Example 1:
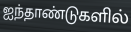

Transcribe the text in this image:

ஐந்தாண்டுகளில்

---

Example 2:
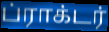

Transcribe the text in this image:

ப்ராக்டர்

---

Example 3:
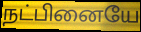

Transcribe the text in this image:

நட்பினையே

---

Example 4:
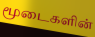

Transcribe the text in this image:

மூடைகளின்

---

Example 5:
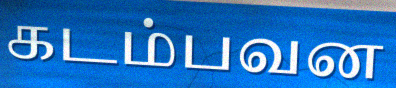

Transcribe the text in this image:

கடம்பவன